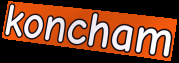
koncham